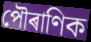
পৌৰাণিক